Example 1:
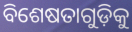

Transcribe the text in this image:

ବିଶେଷତାଗୁଡ଼ିକୁ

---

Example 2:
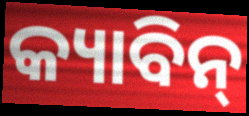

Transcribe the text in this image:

କ୍ୟାବିନ୍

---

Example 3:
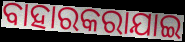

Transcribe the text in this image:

ବାହାରକରାଯାଇ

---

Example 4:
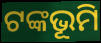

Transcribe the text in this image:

ଟଙ୍କଭୂମି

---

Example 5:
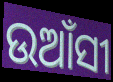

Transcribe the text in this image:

ଉଆଁସୀ